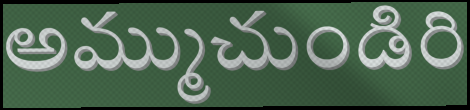
అమ్ముచుండిరి